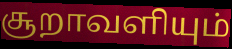
சூறாவளியும்